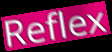
Reflex